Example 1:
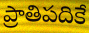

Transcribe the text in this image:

ప్రాతిపదికే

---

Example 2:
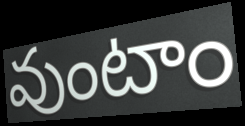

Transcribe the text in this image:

వుంటాం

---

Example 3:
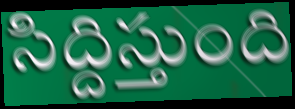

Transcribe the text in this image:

సిద్దిస్తుంది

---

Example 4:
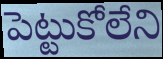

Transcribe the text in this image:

పెట్టుకోలేని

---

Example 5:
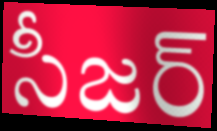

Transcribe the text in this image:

సీజర్